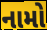
નામો